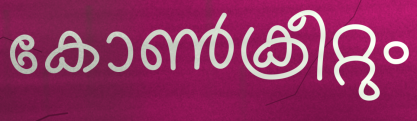
കോൺക്രീറ്റും